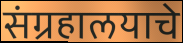
संग्रहालयाचे